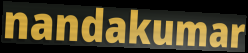
nandakumar